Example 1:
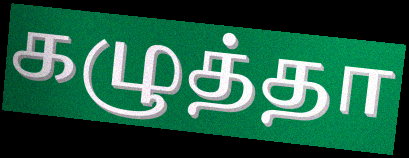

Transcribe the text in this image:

கழுத்தா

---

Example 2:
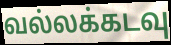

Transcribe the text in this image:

வல்லக்கடவு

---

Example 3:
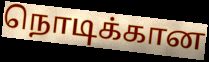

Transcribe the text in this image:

நொடிக்கான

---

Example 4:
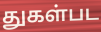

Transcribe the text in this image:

துகள்பட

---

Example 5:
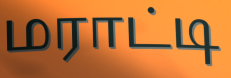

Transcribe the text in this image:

மராட்டி